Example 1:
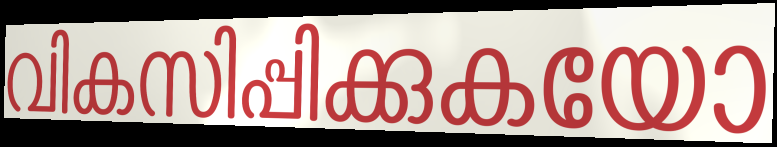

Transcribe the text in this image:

വികസിപ്പിക്കുകയോ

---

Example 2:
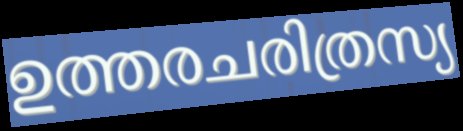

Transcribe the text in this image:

ഉത്തരചരിത്രസ്യ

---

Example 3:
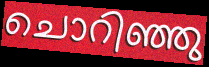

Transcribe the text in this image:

ചൊറിഞ്ഞു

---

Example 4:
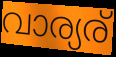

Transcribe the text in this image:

വാര്യര്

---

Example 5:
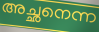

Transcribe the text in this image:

അച്ഛനെന്ന